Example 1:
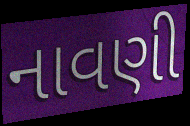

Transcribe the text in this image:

નાવણી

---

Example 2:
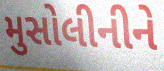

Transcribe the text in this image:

મુસોલીનીને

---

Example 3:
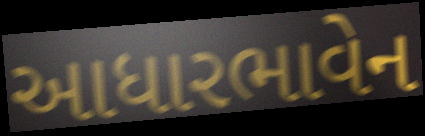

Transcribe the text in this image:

આધારભાવેન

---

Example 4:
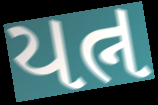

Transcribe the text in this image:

યત્ન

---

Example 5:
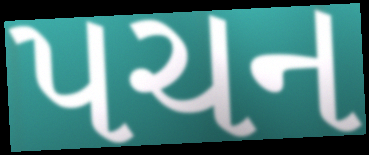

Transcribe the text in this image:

પચન